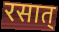
रसात्